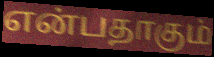
என்பதாகும்